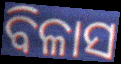
ବିଳାସ